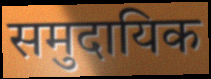
समुदायिक